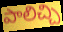
పాలిచ్చి